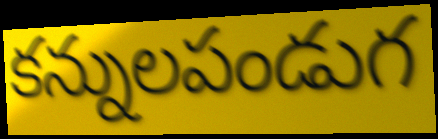
కన్నులపండుగ